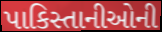
પાકિસ્તાનીઓની